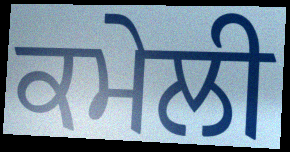
ਕਮੇਲੀ